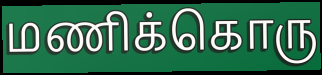
மணிக்கொரு